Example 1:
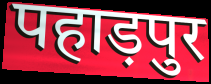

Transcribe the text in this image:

पहाड़पुर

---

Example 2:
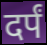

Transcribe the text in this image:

दर्पं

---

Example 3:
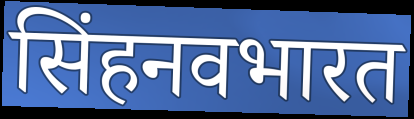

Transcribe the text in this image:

सिंहनवभारत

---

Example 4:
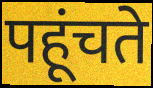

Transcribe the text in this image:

पहूंचते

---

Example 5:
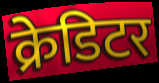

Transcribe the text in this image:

क्रेडिटर